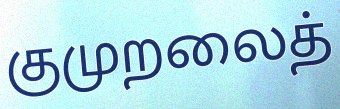
குமுறலைத்